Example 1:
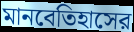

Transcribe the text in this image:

মানবেতিহাসের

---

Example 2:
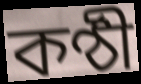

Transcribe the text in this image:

কণ্ঠী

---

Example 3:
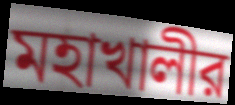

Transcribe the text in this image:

মহাখালীর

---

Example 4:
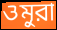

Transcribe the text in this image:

ওমুরা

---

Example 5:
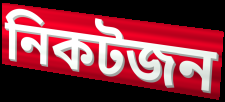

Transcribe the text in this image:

নিকটজন